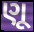
ણૂ